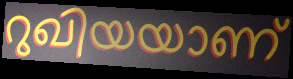
റുഖിയയാണ്